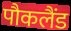
पौकलैंड